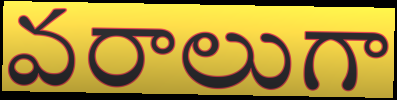
వరాలుగా